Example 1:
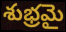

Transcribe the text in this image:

శుభ్రమై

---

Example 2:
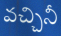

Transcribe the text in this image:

వచ్చినీ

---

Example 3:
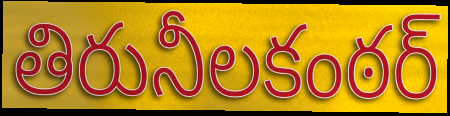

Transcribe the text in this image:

తిరునీలకంఠర్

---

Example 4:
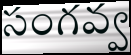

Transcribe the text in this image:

సంగవ్వ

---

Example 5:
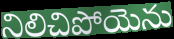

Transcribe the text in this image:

నిలిచిపోయెను